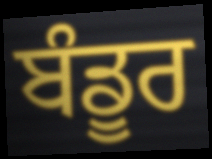
ਬੰਡੂਰ